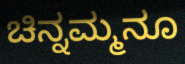
ಚಿನ್ನಮ್ಮನೂ